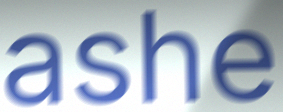
ashe